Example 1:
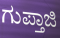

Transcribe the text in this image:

ಗುಪ್ತಾಜಿ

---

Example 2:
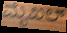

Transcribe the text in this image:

ಮೈಖಲ್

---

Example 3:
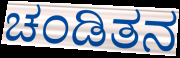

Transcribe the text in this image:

ಚಂಡಿತನ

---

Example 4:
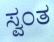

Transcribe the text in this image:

ಸ್ವಂತ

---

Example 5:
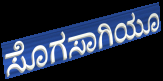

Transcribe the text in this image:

ಸೊಗಸಾಗಿಯೂ